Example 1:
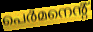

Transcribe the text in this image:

പെർമനെന്റ്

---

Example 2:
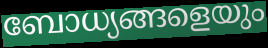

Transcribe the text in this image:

ബോധ്യങ്ങളെയും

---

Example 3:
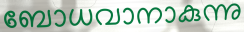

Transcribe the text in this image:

ബോധവാനാകുന്നു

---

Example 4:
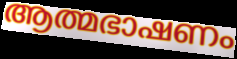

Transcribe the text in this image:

ആത്മഭാഷണം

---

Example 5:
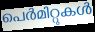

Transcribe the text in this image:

പെർമിറ്റുകൾ